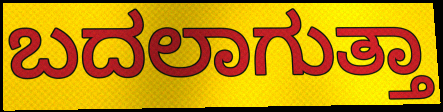
ಬದಲಾಗುತ್ತಾ